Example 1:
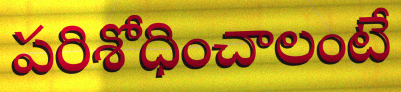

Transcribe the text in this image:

పరిశోధించాలంటే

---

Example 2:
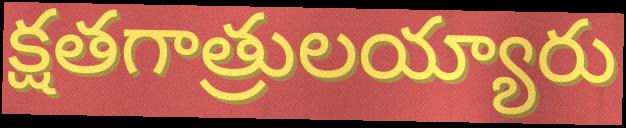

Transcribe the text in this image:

క్షతగాత్రులయ్యారు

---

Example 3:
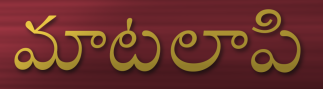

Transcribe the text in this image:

మాటలాపి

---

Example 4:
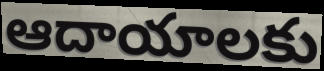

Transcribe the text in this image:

ఆదాయాలకు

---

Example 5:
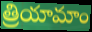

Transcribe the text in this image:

త్రియామాం